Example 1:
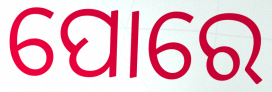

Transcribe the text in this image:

ପୋରେ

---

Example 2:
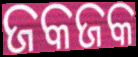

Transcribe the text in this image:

ଜକଜକ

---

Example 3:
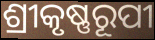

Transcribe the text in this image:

ଶ୍ରୀକୃଷ୍ଣରୂପୀ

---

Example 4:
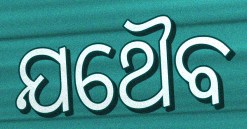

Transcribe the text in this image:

ଯଥୈବ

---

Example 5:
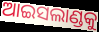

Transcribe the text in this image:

ଆଇସଲାଣ୍ଡକୁ